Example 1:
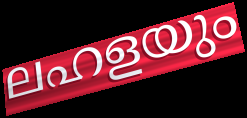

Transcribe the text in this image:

ലഹളയും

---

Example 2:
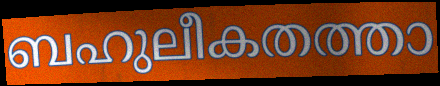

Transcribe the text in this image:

ബഹുലീകതത്താ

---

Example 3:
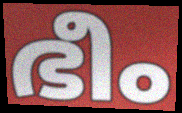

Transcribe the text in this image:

ഭീം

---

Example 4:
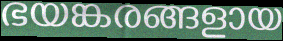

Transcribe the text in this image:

ഭയങ്കരങ്ങളായ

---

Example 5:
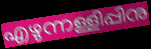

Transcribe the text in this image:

എഴുന്നള്ളിപ്പിനു